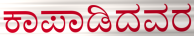
ಕಾಪಾಡಿದವರ